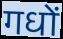
गधों